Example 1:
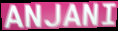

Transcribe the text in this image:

ANJANI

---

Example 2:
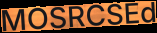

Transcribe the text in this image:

MOSRCSEd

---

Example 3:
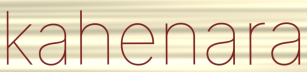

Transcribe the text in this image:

kahenara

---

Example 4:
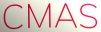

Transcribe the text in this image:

CMAS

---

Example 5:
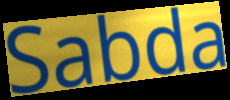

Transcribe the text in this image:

Sabda